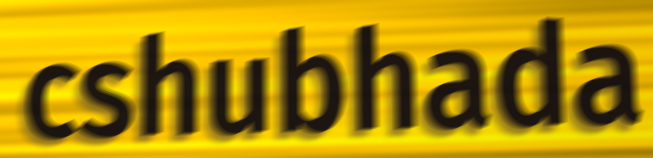
cshubhada